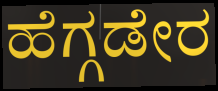
ಹೆಗ್ಗಡೇರ